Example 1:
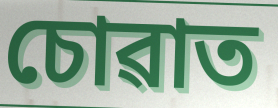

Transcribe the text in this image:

চোৱাত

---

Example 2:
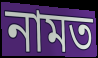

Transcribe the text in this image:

নামত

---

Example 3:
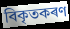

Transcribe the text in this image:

বিকৃতকৰণ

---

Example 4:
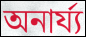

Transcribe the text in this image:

অনাৰ্য্য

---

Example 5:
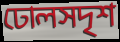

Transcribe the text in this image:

ঢোলসদৃশ